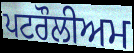
ਪਟਰੌਲੀਅਮ